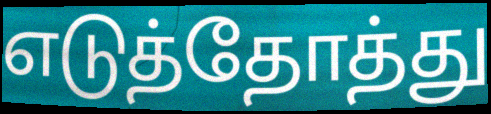
எடுத்தோத்து